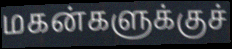
மகன்களுக்குச்